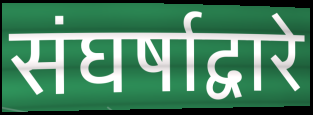
संघर्षाद्वारे